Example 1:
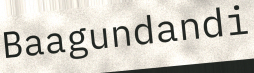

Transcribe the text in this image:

Baagundandi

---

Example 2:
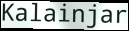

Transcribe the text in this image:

Kalainjar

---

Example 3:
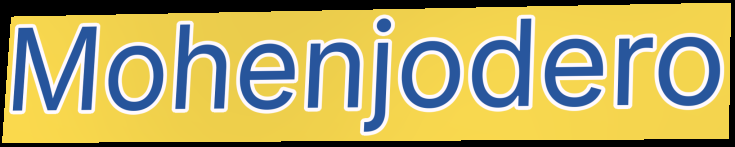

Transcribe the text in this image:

Mohenjodero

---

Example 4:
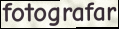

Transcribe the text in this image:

fotografar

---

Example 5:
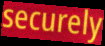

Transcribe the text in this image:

securely